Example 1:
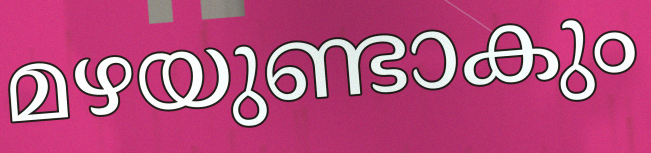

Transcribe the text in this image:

മഴയുണ്ടാകും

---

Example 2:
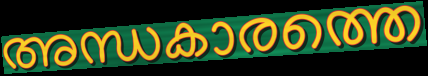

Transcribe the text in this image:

അന്ധകാരത്തെ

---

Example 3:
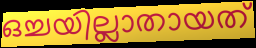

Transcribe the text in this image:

ഒച്ചയില്ലാതായത്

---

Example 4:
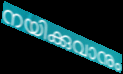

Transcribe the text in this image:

നയിക്കുവാനും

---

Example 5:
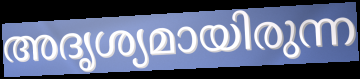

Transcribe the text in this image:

അദൃശ്യമായിരുന്ന